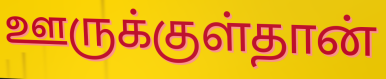
ஊருக்குள்தான்